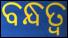
ବନ୍ଧତ୍ୱ